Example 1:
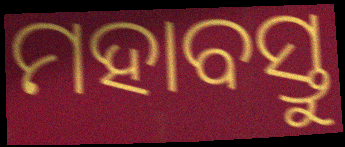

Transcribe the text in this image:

ମହାବସ୍ତୁ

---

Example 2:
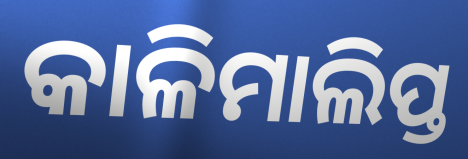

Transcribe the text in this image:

କାଳିମାଲିପ୍ତ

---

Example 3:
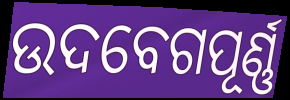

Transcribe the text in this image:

ଉଦବେଗପୂର୍ଣ୍ଣ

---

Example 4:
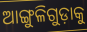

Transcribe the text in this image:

ଆଙ୍ଗୁଳିଗୁଡ଼ାକୁ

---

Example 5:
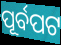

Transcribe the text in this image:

ପୂର୍ବପଟ